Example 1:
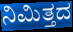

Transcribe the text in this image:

ನಿಮಿತ್ತದ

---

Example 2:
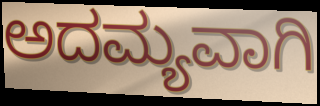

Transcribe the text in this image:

ಅದಮ್ಯವಾಗಿ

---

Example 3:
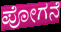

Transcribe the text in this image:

ಪೋಗನೆ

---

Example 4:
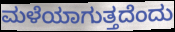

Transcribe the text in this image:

ಮಳೆಯಾಗುತ್ತದೆಂದು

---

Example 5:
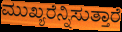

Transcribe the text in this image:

ಮುಖ್ಯರೆನ್ನಿಸುತ್ತಾರೆ